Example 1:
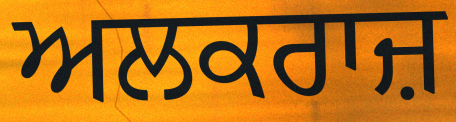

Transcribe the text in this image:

ਅਲਕਰਾਜ਼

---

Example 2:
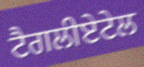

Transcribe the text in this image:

ਟੈਗਲੀਏਟੇਲ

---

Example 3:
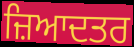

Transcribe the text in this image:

ਜ਼ਿਆਦਤਰ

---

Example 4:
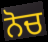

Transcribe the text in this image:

ਨੋਚ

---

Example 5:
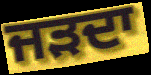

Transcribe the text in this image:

ਜੜਦਾ